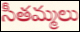
సీతమ్మలు